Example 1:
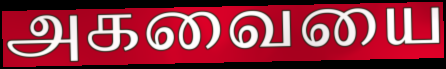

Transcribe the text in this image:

அகவையை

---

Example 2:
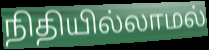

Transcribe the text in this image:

நிதியில்லாமல்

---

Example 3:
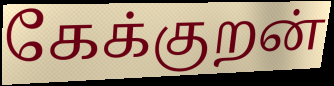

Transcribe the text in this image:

கேக்குறன்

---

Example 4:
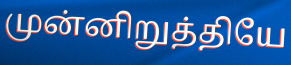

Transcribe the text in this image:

முன்னிறுத்தியே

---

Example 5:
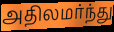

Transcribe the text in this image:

அதிலமர்ந்து